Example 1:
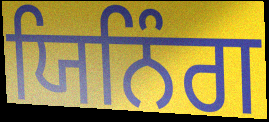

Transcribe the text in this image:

ਯਿਨਿੰਗ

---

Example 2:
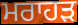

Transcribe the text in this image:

ਮਰਾਹੜ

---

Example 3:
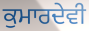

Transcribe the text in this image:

ਕੁਮਾਰਦੇਵੀ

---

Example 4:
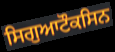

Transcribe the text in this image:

ਸਿਗੁਆਟੌਕਸਿਨ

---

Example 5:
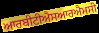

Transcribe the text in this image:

ਆਰਬੀਟੀਐਸਆਰਐਮਸੀ